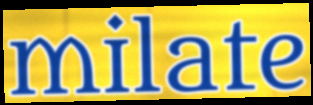
milate